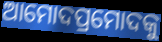
ଆମୋଦପ୍ରମୋଦକୁ